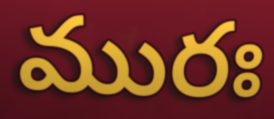
మురః